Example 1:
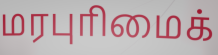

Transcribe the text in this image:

மரபுரிமைக்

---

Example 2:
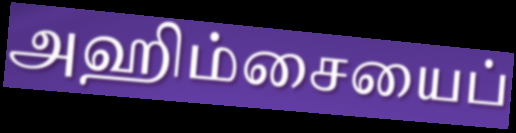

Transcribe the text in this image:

அஹிம்சையைப்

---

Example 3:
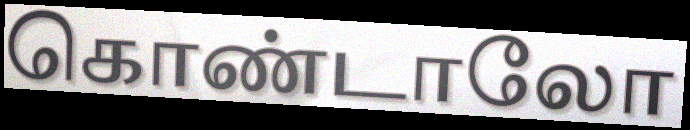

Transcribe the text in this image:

கொண்டாலோ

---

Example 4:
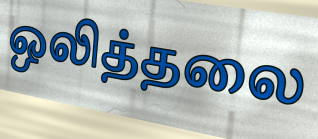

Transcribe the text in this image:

ஒலித்தலை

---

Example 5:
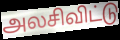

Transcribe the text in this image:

அலசிவிட்டு